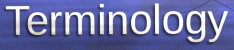
Terminology